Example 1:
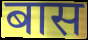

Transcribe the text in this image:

बास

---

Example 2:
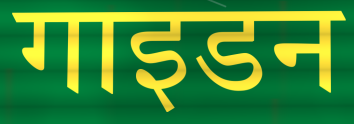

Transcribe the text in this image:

गाइडन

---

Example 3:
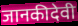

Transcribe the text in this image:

जानकीदेवी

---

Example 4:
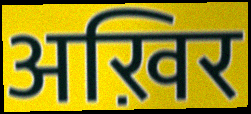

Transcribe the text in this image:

अख़िर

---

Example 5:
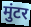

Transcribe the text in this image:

मुंटर